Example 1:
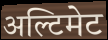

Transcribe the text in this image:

अल्टिमेट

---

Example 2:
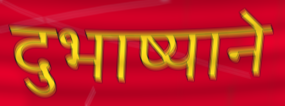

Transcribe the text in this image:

दुभाष्याने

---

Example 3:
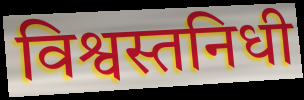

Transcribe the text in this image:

विश्वस्तनिधी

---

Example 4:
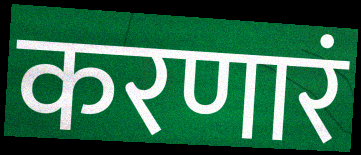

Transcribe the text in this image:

करणारं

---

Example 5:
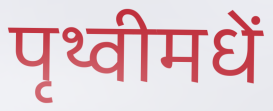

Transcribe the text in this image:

पृथ्वीमधें